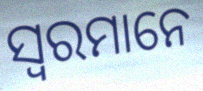
ସ୍ୱରମାନେ